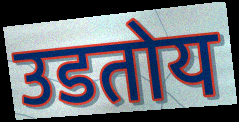
उडतोय